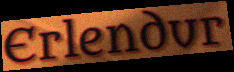
Erlendur